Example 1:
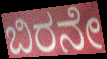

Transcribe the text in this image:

ಬಿರನೇ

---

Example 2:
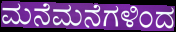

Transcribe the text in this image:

ಮನೆಮನೆಗಳಿಂದ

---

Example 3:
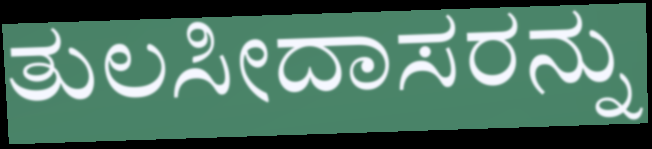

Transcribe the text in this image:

ತುಲಸೀದಾಸರನ್ನು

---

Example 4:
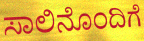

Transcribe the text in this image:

ಸಾಲಿನೊಂದಿಗೆ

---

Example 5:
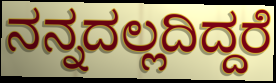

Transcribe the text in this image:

ನನ್ನದಲ್ಲದಿದ್ದರೆ